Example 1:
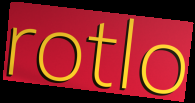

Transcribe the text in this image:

rotlo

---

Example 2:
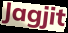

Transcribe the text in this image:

Jagjit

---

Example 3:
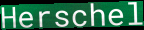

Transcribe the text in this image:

Herschel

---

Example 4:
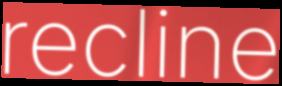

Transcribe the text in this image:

recline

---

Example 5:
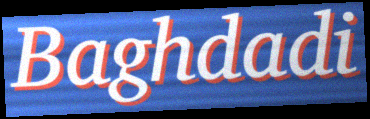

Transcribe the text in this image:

Baghdadi